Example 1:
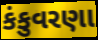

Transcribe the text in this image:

કંકુવરણા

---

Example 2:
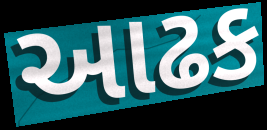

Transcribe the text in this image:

આઢક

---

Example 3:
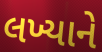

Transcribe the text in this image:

લખ્યાને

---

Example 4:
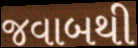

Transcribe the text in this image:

જવાબથી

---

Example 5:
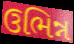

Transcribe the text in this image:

ઉભિન્ન